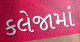
કલેજામાં